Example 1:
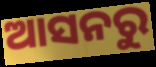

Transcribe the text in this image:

ଆସନରୁ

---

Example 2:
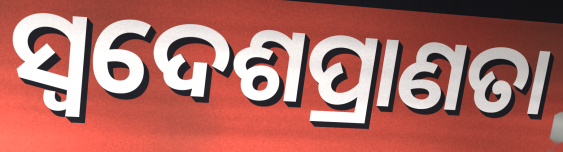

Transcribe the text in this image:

ସ୍ଵଦେଶପ୍ରାଣତା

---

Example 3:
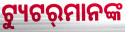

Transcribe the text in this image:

ଟ୍ୟୁଟର୍‍ମାନଙ୍କ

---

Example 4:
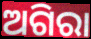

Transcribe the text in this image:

ଅଗିରା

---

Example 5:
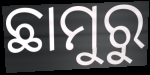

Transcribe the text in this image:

ଛାମୁରୁ